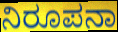
ನಿರೂಪನಾ